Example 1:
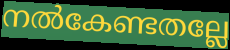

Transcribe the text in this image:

നൽകേണ്ടതല്ലേ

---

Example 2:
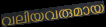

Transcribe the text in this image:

വലിയവരുമായ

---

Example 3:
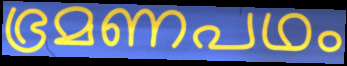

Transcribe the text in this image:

ഭ്രമണപഥം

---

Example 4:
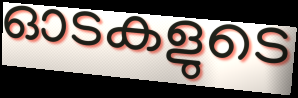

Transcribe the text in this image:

ഓടകളുടെ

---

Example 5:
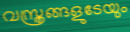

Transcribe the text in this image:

വസ്ത്രങ്ങളുടേയും